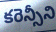
కరెన్సీని